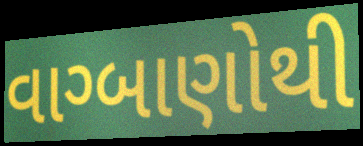
વાગ્બાણોથી